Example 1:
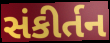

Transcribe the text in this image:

સંકીર્તન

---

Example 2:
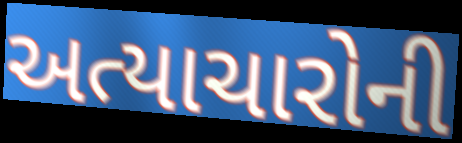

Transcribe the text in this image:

અત્યાચારોની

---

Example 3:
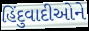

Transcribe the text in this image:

હિંદુવાદીઓને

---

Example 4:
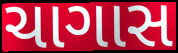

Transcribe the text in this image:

ચાગાસ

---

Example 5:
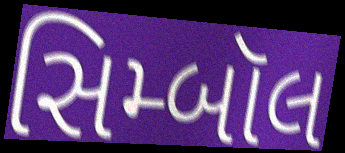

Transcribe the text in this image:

સિમ્બૉલ